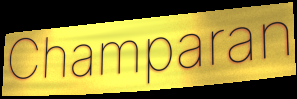
Champaran